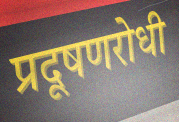
प्रदूषणरोधी